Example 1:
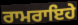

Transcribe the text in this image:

ਰਾਮਰਾਇਹੇ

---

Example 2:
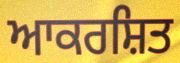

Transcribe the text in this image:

ਆਕਰਸ਼ਿਤ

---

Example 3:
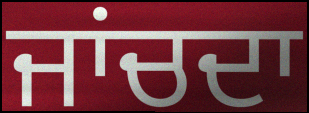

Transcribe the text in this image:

ਜਾਂਚਦਾ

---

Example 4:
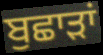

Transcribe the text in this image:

ਬੁਛਾੜਾਂ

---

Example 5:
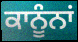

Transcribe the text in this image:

ਕਾਨੂੰਨਾਂ